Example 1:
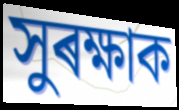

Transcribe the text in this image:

সুৰক্ষাক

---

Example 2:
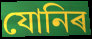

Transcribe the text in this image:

যোনিৰ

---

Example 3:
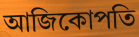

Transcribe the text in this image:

আজিকোপতি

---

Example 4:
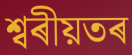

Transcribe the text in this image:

শ্বৰীয়তৰ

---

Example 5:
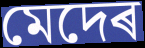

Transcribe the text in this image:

মেদেৰ